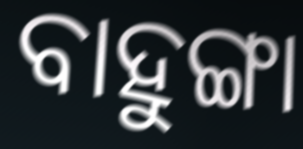
ବାହୁଙ୍ଗା